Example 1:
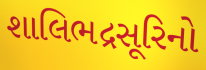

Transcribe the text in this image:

શાલિભદ્રસૂરિનો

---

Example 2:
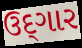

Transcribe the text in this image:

ઉદ્‌ગાર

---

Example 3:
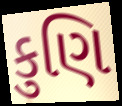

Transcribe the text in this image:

કુણિ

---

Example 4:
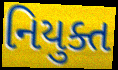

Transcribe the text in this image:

નિયુક્ત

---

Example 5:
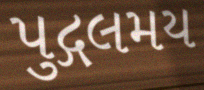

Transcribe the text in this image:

પુદ્ગલમય